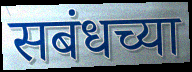
सबंधच्या